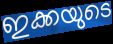
ഇക്കയുടെ